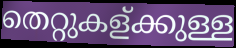
തെറ്റുകള്ക്കുള്ള